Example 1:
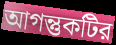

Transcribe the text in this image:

আগন্তুকটির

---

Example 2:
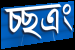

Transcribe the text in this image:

চ্ছত্রং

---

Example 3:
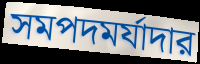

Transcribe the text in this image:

সমপদমর্যাদার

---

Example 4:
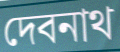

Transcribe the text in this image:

দেবনাথ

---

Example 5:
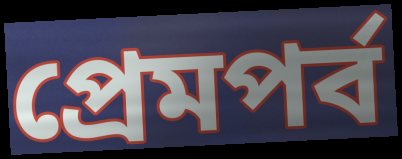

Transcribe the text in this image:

প্রেমপর্ব